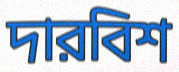
দারবিশ